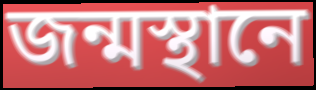
জন্মস্থানে